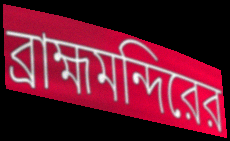
ব্রাহ্মমন্দিরের